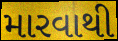
મારવાથી